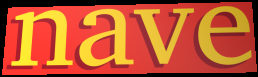
nave